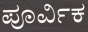
ಪೂರ್ವಿಕ